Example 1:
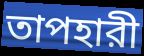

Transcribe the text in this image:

তাপহারী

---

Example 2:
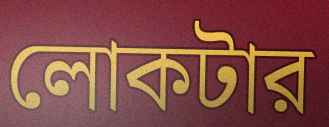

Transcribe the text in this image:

লোকটার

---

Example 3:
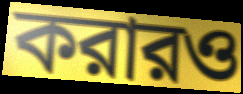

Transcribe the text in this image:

করারও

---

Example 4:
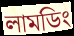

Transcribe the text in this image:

লামডিং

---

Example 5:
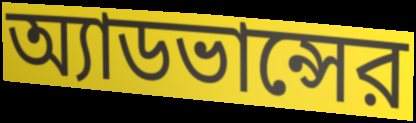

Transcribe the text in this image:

অ্যাডভান্সের